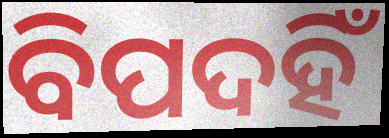
ବିପଦହିଁ